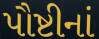
પૌષ્ટીનાં